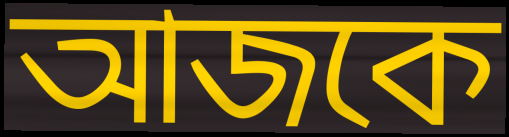
আজকে